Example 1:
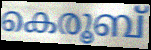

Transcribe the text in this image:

കെരൂബ്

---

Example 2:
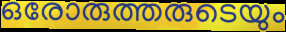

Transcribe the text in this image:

ഒരോരുത്തരുടെയും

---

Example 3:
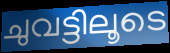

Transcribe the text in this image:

ചുവട്ടിലൂടെ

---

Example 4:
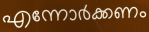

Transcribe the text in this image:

എന്നോർക്കണം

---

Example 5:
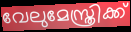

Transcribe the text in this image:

വേലുമേസ്ത്രിക്ക്